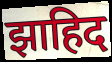
झाहिद